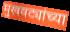
मुखवट्यांच्या